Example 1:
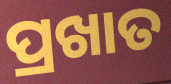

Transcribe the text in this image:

ପ୍ରଖାତ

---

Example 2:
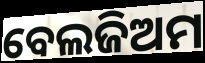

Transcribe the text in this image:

ବେଲଜିଅମ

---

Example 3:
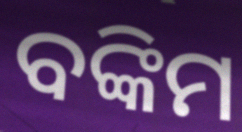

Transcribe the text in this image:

ବଙ୍କିମ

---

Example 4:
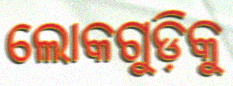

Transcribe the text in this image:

ଲୋକଗୁଡ଼ିକୁ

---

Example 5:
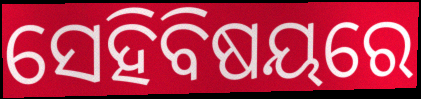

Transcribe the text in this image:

ସେହିବିଷୟରେ